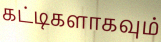
கட்டிகளாகவும்